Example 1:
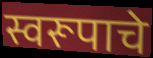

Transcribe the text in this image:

स्वरूपाचे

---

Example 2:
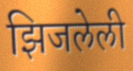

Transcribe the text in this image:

झिजलेली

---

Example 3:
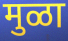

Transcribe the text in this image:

मुळा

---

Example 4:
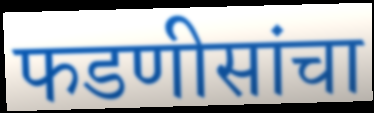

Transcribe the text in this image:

फडणीसांचा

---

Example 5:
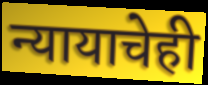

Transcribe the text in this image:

न्यायाचेही